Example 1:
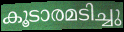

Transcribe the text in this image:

കൂടാരമടിച്ചു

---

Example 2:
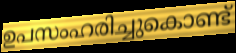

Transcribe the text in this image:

ഉപസംഹരിച്ചുകൊണ്ട്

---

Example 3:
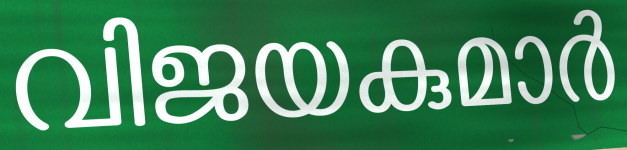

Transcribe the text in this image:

വിജയകുമാർ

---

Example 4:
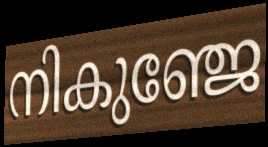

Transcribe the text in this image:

നികുഞ്ജേ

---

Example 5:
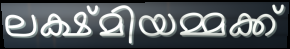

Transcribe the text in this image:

ലക്ഷ്മിയമ്മക്ക്